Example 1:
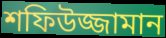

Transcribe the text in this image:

শফিউজ্জামান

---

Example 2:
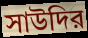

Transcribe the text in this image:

সাউদির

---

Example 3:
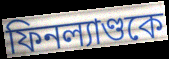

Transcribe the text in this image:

ফিনল্যাণ্ডকে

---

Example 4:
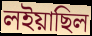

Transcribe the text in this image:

লইয়াছিল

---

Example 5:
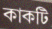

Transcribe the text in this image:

কাকটি